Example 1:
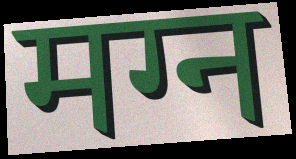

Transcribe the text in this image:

मग्‍न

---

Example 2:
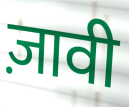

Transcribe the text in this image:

ज़ावी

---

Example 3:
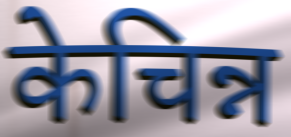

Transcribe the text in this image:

केचिन्न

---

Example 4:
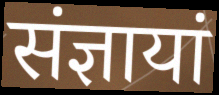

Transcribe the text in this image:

संज्ञायां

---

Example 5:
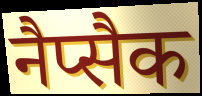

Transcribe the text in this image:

नैप्सैक